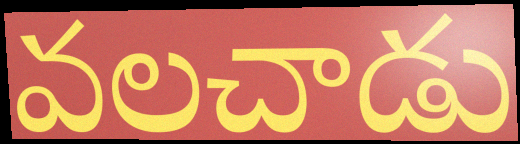
వలచాడు